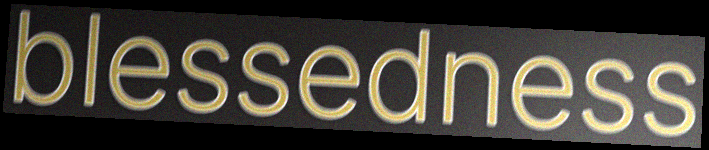
blessedness